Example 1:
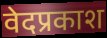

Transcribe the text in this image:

वेदप्रकाश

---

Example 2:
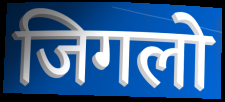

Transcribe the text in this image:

जिगलो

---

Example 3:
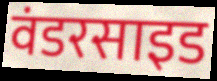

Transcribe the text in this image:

वंडरसाइड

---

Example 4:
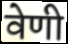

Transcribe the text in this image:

वेणी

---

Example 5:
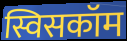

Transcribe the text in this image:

स्विसकॉम